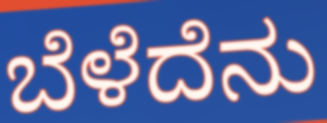
ಬೆಳೆದೆನು